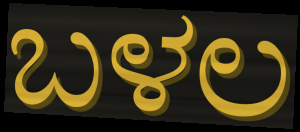
ಬಳಲ